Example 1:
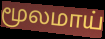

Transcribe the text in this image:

மூலமாய்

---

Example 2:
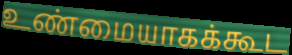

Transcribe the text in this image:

உண்மையாகக்கூட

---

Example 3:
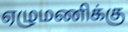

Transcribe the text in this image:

ஏழுமணிக்கு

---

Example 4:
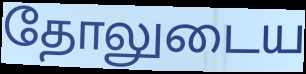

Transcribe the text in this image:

தோலுடைய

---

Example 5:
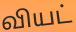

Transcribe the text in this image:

வியட்